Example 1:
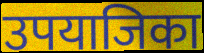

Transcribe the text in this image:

उपयाजिका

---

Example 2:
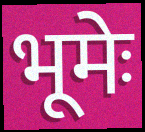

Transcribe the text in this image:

भूमेः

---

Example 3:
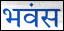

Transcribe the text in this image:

भवंस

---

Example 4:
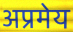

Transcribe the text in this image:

अप्रमेय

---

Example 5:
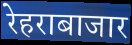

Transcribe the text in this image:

रेहराबाजार